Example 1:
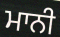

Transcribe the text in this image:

ਮਾਨੀ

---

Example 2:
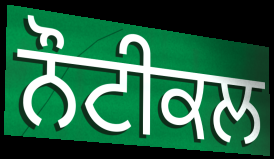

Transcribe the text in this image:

ਨੌਟੀਕਲ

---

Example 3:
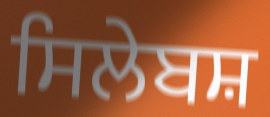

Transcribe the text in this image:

ਸਿਲੇਬਸ਼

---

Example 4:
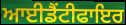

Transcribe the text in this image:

ਆਈਡੈਂਟੀਫਾਇਰ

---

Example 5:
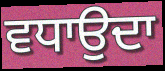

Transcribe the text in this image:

ਵਧਾਉਦਾ